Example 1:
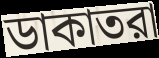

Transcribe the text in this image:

ডাকাতরা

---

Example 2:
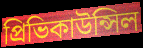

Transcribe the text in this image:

প্রিভিকাউন্সিল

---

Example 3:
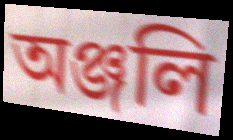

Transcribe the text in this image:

অঞ্জলি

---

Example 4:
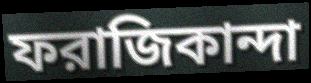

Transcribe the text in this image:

ফরাজিকান্দা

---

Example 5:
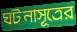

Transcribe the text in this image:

ঘটনাসূত্রের